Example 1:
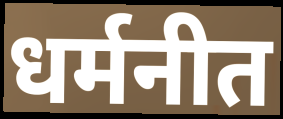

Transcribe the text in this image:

धर्मनीत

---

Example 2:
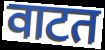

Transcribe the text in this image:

वाटत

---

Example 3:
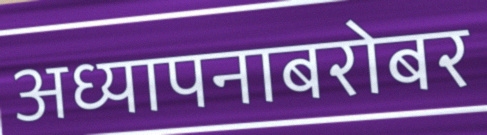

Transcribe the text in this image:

अध्यापनाबरोबर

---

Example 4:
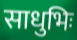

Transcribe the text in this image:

साधुभिः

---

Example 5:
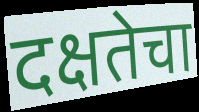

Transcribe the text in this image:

दक्षतेचा